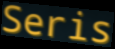
Seris